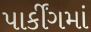
પાર્કીંગમાં